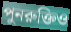
পুনরুক্তিও